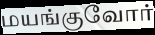
மயங்குவோர்